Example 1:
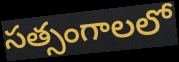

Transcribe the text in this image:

సత్సంగాలలో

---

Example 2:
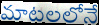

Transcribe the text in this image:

మాటలలోనే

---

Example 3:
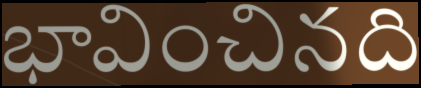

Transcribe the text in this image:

భావించినది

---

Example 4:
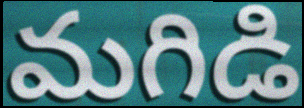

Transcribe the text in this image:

మగిడి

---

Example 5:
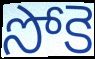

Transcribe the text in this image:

సోకె